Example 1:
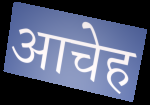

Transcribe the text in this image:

आचेह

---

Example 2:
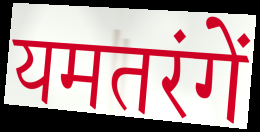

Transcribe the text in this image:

यमतरंगें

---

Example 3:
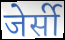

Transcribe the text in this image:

जेर्सी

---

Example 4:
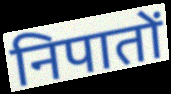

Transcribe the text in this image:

निपातों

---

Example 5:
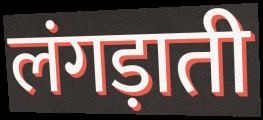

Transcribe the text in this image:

लंगड़ाती